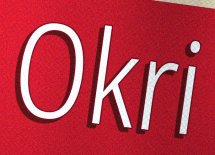
Okri